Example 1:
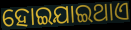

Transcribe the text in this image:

ହୋଇଯାଇଥାଏ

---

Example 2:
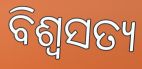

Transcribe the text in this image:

ବିଶ୍ୱସତ୍ୟ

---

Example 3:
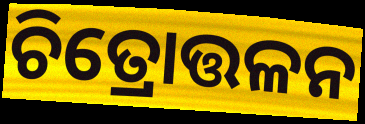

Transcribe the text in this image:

ଚିତ୍ରୋତ୍ତଳନ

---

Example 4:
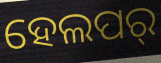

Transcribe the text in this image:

ହେଲପର୍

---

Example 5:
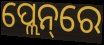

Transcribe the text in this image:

ପ୍ଲେନ୍‌ରେ